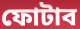
ফোটাব